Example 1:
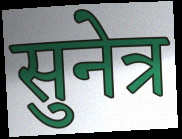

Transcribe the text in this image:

सुनेत्र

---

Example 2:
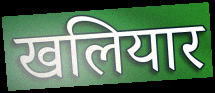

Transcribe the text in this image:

खलियार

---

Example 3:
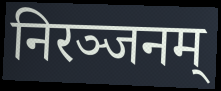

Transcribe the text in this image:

निरञ्जनम्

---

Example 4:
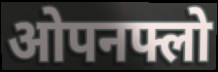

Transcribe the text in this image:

ओपनफ्लो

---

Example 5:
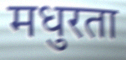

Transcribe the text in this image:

मधुरता